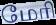
மேரி